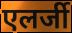
एलर्जी